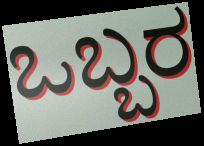
ಒಬ್ಬರ